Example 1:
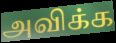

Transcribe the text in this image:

அவிக்க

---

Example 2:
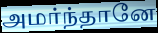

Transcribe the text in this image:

அமர்ந்தானே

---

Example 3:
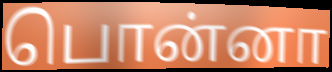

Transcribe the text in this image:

பொன்னா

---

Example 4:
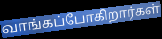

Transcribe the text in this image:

வாங்கப்போகிறார்கள்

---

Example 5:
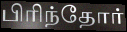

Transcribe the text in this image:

பிரிந்தோர்